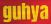
guhya